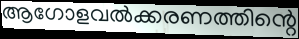
ആഗോളവൽക്കരണത്തിന്റെ